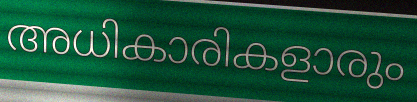
അധികാരികളാരും